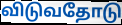
விடுவதோடு